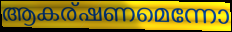
ആകര്ഷണമെന്നോ